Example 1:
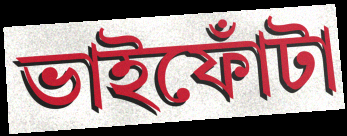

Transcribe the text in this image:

ভাইফোঁটা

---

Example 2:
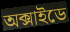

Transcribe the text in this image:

অক্সাইডে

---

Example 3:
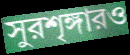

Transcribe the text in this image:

সুরশৃঙ্গারও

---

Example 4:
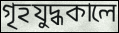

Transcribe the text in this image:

গৃহযুদ্ধকালে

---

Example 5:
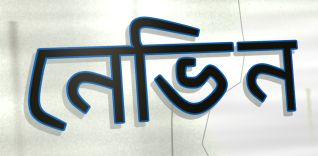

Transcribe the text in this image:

নেভিন